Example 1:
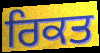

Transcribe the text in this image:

ਰਿਕਤ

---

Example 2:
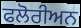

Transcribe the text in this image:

ਫਲੋਰੀਅਨ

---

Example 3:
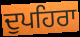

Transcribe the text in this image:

ਦੁਪਹਿਰਾ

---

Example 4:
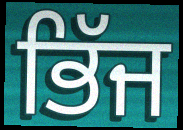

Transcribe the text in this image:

ਭਿੱਜ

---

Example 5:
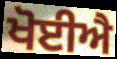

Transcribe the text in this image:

ਖੋਈਐ